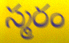
స్మరం